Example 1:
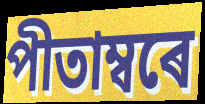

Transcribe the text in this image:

পীতাম্বৰে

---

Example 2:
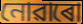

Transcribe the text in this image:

নোৱাৰো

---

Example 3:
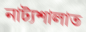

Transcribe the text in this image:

নাট্যশালাত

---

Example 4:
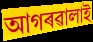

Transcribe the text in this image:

আগৰৱালাই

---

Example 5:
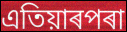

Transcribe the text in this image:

এতিয়াৰপৰা